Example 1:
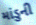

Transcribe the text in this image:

માંડુની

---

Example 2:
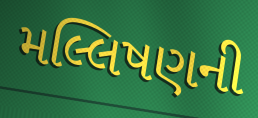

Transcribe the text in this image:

મલ્લિષણની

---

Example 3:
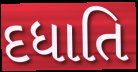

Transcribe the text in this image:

દધાતિ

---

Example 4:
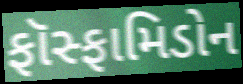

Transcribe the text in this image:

ફૉસ્ફામિડોન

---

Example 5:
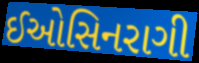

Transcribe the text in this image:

ઈઓસિનરાગી